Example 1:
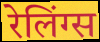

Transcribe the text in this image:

रेलिंग्स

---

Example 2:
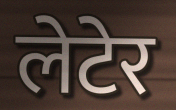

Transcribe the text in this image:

लेटेर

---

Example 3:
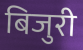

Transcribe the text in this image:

बिजुरी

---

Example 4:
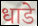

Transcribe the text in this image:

धाडे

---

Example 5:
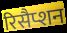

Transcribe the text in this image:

रिसैप्शन